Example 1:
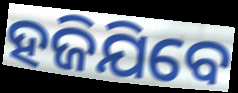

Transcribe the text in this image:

ହଜିଯିବେ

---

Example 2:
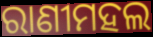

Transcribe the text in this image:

ରାଣୀମହଲ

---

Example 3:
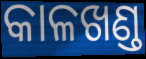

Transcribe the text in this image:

କାଳଖଣ୍ଡ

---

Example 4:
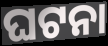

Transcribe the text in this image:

ଘଟନା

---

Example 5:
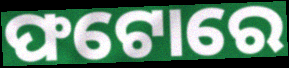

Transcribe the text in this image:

ଫଟୋରେ